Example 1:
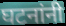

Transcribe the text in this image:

घटनांनी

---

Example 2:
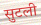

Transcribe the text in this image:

सुटली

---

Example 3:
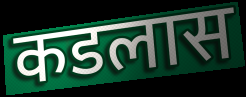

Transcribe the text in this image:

कडलास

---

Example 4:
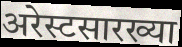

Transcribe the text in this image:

अरेस्टसारख्या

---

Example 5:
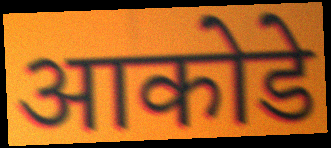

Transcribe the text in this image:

आकोडे